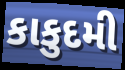
કાકુદમી